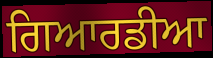
ਗਿਆਰਡੀਆ